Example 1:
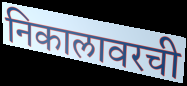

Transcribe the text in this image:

निकालावरची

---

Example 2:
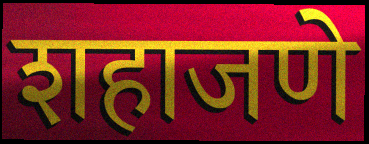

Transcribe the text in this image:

शहाजणे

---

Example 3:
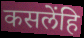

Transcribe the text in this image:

कसलेंहि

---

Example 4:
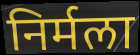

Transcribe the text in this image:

निर्मला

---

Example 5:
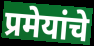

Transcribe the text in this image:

प्रमेयांचे